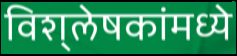
विश्लेषकांमध्ये